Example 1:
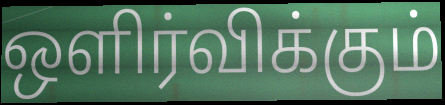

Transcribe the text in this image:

ஒளிர்விக்கும்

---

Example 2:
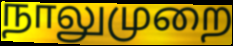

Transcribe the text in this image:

நாலுமுறை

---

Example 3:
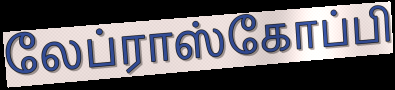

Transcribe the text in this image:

லேப்ராஸ்கோப்பி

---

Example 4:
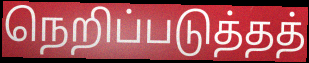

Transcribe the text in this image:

நெறிப்படுத்தத்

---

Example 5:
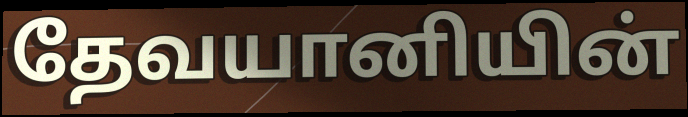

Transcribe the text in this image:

தேவயானியின்